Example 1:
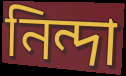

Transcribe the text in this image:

নিন্দা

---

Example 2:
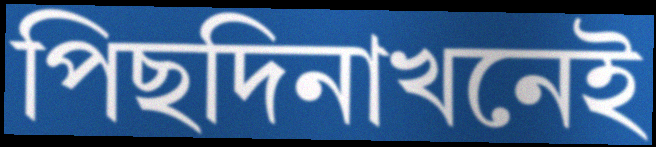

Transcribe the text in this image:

পিছদিনাখনেই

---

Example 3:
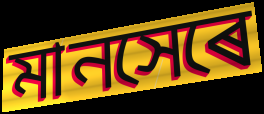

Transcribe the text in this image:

মানসেৰে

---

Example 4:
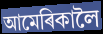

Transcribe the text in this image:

আমেৰিকালৈ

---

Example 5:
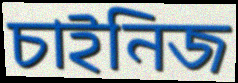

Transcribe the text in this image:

চাইনিজ